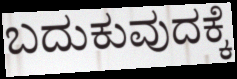
ಬದುಕುವುದಕ್ಕೆ